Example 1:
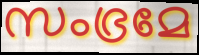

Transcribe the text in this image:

സംഭ്രമേ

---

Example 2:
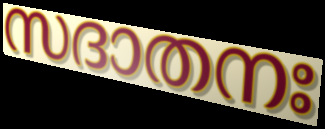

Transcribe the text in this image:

സദാതനഃ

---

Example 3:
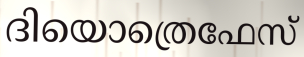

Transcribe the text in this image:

ദിയൊത്രെഫേസ്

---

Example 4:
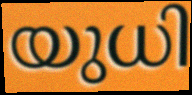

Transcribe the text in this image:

യുധി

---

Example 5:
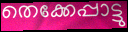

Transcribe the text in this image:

തെക്കേപ്പാട്ടു